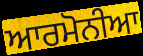
ਆਰਮੋਨੀਆ